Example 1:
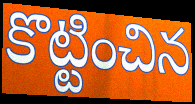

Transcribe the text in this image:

కొట్టించిన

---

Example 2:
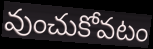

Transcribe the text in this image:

వుంచుకోవటం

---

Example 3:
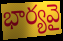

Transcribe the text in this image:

భార్యవై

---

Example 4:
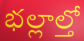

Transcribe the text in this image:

భల్లాల్తో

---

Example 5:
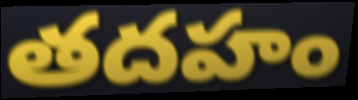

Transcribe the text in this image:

తదహం